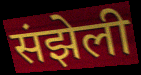
संझेली